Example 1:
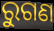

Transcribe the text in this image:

ରୁଗଣ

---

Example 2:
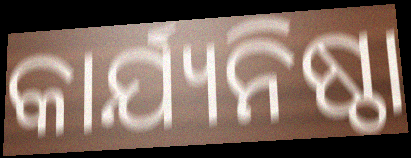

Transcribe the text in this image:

କାର୍ଯ୍ୟନିଷ୍ଠା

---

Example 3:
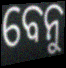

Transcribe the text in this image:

ବେନୁ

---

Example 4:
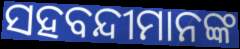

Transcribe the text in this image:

ସହବନ୍ଦୀମାନଙ୍କ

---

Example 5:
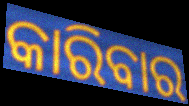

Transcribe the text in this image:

କାରିବାର